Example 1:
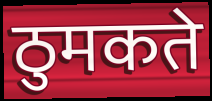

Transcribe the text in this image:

ठुमकते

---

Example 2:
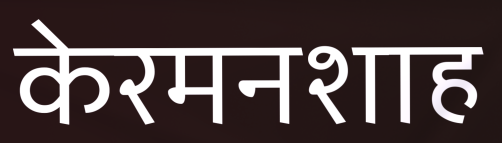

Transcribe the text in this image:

केरमनशाह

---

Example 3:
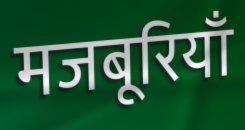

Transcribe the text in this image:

मजबूरियाँ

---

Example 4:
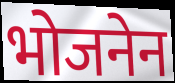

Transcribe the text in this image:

भोजनेन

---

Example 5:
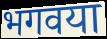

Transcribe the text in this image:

भगवया